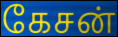
கேசன்